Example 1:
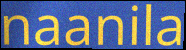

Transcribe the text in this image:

naanila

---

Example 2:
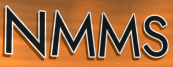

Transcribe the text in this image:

NMMS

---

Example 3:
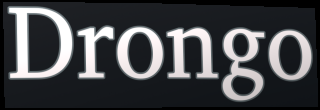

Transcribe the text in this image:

Drongo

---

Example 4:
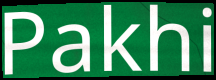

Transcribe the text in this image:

Pakhi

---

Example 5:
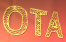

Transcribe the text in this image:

OTA